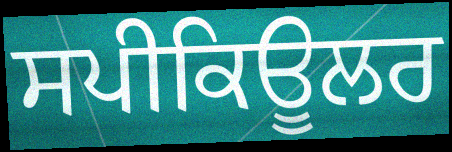
ਸਪੀਕਿਊਲਰ